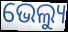
ଭେଲ୍ୟୁ